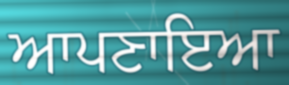
ਆਪਣਾਇਆ